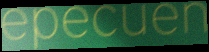
epecuen